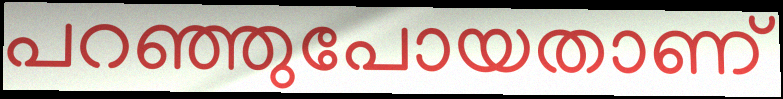
പറഞ്ഞുപോയതാണ്